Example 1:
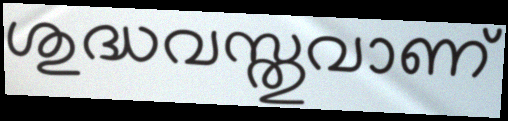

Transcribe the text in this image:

ശുദ്ധവസ്തുവാണ്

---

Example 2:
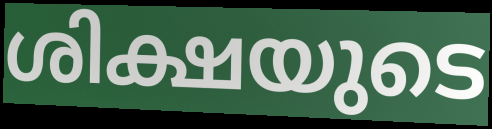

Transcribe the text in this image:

ശിക്ഷയുടെ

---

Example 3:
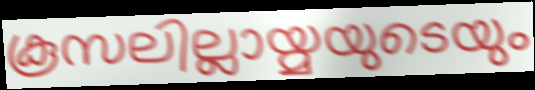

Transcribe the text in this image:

കൂസലില്ലായ്മയുടെയും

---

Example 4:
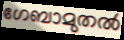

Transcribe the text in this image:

ഗേബാമുതൽ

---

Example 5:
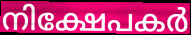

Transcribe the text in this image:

നിക്ഷേപകർ